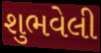
શુભવેલી